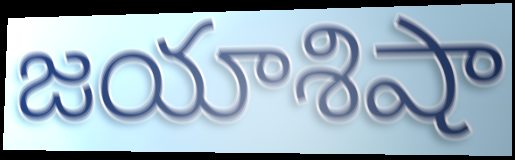
జయాశిషా